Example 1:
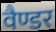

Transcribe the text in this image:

वैण्डर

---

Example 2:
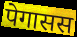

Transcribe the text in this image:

पेगासस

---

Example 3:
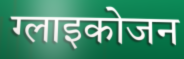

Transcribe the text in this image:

ग्लाइकोजन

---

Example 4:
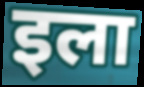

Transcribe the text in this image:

इला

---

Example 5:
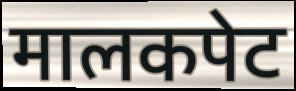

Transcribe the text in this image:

मालकपेट